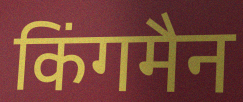
किंगमैन